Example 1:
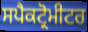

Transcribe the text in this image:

ਸਪੈਕਟ੍ਰੋਮੀਟਰ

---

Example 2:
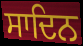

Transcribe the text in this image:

ਸਾਦਿਨ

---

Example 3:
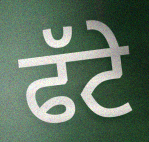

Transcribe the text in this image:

ਫੱਟੇ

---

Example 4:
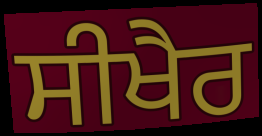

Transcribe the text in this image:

ਸੀਖੈਰ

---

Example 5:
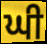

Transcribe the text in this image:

ਘੀ